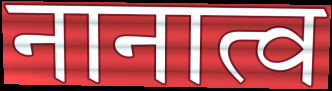
नानात्व